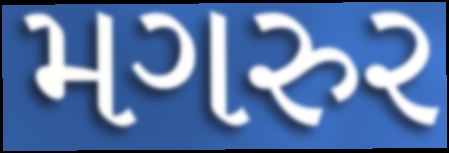
મગરુર